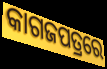
କାଗଜପତ୍ରରେ